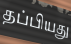
தப்பியது